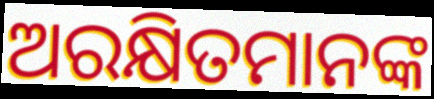
ଅରକ୍ଷିତମାନଙ୍କ